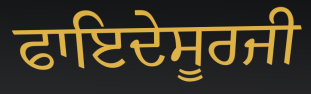
ਫਾਇਦੇਸੂਰਜੀ